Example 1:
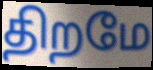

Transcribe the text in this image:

திறமே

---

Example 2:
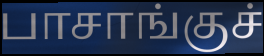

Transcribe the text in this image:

பாசாங்குச்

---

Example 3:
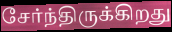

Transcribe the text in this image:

சேர்ந்திருக்கிறது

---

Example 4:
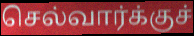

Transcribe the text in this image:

செல்வார்க்குச்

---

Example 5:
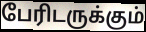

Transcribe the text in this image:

பேரிடருக்கும்